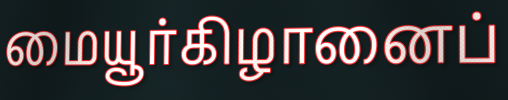
மையூர்கிழானைப்